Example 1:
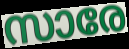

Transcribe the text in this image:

സാരേ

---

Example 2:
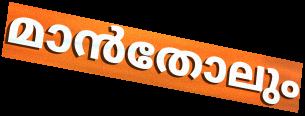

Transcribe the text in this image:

മാൻതോലും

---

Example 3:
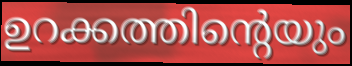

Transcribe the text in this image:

ഉറക്കത്തിന്റെയും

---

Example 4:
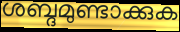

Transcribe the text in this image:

ശബ്ദമുണ്ടാക്കുക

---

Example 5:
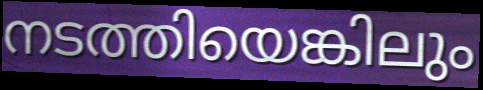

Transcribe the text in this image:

നടത്തിയെങ്കിലും